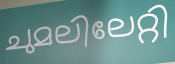
ചുമലിലേറ്റി